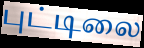
புட்டிலை